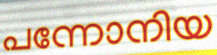
പന്നോനിയ